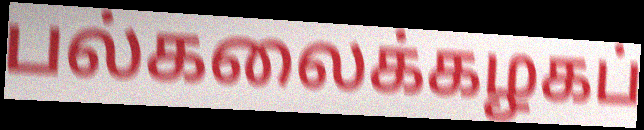
பல்கலைக்கழகப்